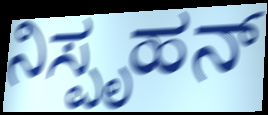
ನಿಸ್ಪೃಹನ್